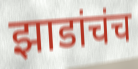
झाडांचंच